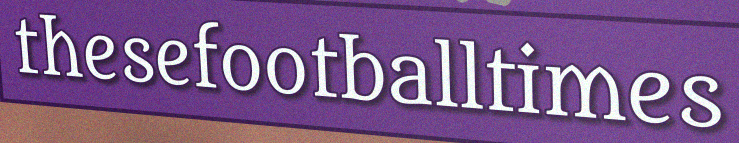
thesefootballtimes